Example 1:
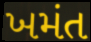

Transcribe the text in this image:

ખમંત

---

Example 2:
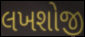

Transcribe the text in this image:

લખશોજી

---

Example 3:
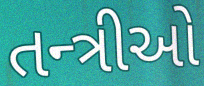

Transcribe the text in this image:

તન્ત્રીઓ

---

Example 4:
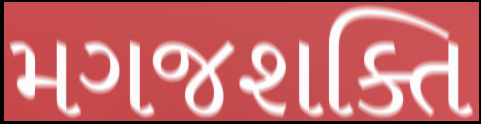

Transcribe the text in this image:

મગજશક્તિ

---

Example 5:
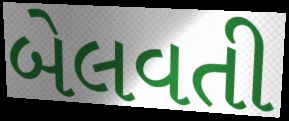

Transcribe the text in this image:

બેલવતી